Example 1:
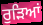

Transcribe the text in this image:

ਰੁੜਿਆਂ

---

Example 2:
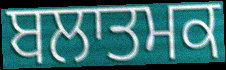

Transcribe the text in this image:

ਬਲਾਤਮਕ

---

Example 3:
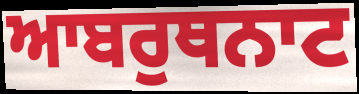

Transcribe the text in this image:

ਆਬਰੁਥਨਾਟ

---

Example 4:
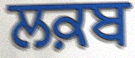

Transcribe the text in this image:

ਲਕ਼ਬ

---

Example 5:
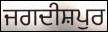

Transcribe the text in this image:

ਜਗਦੀਸ਼ਪੁਰ